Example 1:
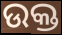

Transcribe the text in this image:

ଉକ୍ତ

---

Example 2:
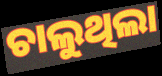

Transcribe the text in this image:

ଚାଲୁଥିଲା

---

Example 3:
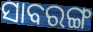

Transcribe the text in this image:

ସାବରଙ୍ଗ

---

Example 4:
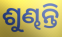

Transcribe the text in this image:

ଶୁଣ୍ଢନ୍ତି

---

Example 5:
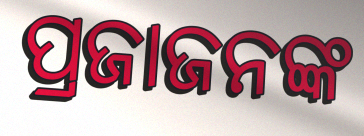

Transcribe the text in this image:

ପ୍ରଜାଜନଙ୍କ